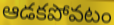
ఆడకపోవటం